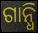
ଗାନ୍ଧି